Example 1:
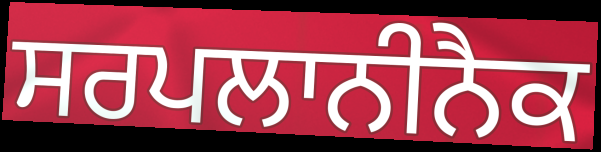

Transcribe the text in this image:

ਸਰਪਲਾਨੀਨੈਕ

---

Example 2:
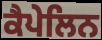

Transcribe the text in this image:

ਕੈਪੇਲਿਨ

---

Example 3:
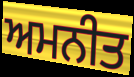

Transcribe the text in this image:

ਅਮਨੀਤ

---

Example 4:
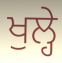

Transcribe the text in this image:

ਖੁਲ੍ਹੇ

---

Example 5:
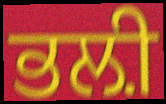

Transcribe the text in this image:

ਭਲ਼ੀ